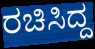
ರಚಿಸಿದ್ದ